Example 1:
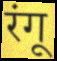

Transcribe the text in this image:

रंगू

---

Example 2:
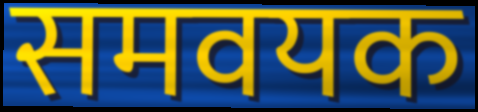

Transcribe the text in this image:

समवयक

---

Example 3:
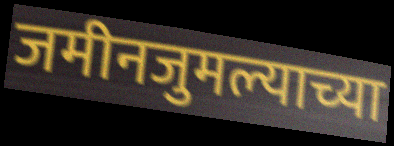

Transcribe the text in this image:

जमीनजुमल्याच्या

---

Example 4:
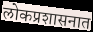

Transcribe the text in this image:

लोकप्रशासनात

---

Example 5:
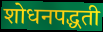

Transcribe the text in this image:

शोधनपद्धती